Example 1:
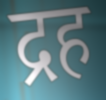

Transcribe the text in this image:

द्रह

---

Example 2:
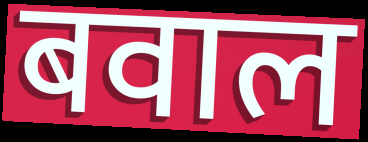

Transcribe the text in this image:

बवाल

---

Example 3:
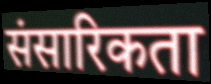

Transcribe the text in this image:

संसारिकता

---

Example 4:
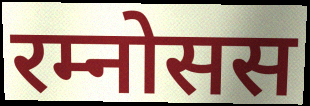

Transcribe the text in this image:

रम्नोसस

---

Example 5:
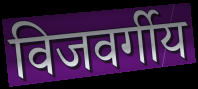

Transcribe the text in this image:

विजवर्गीय